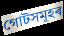
গোটসমূহৰ